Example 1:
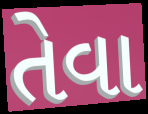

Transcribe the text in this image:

તેવા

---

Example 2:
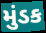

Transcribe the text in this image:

મુંડક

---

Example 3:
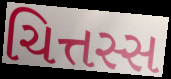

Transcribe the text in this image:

ચિત્તસ્સ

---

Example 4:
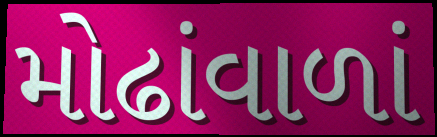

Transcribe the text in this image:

મોઢાંવાળાં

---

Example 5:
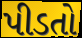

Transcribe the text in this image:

પીડતો